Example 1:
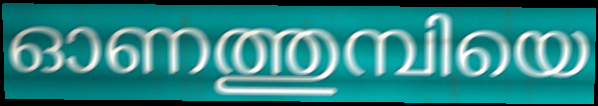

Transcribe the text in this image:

ഓണത്തുമ്പിയെ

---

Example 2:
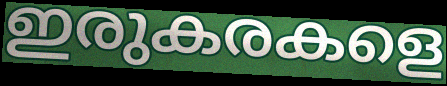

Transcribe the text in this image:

ഇരുകരകളെ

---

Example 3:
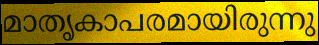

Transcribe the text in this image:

മാതൃകാപരമായിരുന്നു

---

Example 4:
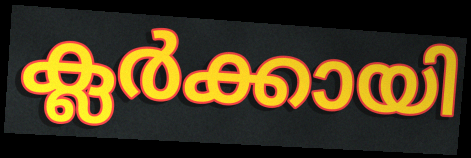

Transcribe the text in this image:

ക്ലർക്കായി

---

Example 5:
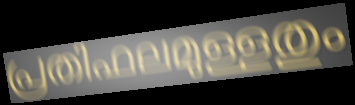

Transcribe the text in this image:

പ്രതിഫലമുള്ളതും